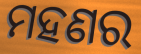
ମହଣର